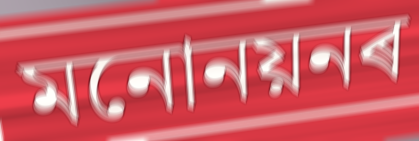
মনোনয়নৰ